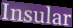
Insular